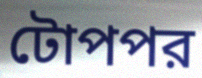
টোপপর